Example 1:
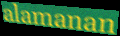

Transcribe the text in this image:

alamanan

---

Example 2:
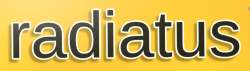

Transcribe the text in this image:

radiatus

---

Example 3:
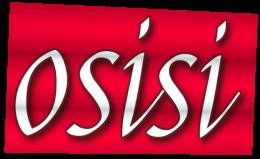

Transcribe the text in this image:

osisi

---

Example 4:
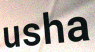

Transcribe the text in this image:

usha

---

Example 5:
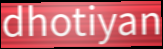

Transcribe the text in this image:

dhotiyan